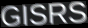
GISRS